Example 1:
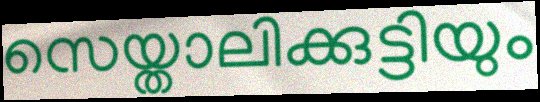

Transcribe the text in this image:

സെയ്താലിക്കുട്ടിയും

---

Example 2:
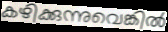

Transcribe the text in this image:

കഴിക്കുന്നുവെങ്കിൽ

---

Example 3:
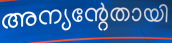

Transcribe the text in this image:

അന്യന്റേതായി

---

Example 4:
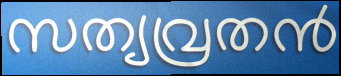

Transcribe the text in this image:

സത്യവ്രതൻ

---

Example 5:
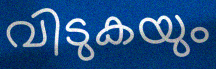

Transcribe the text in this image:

വിടുകയും